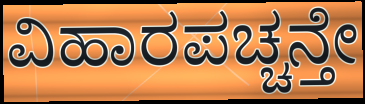
ವಿಹಾರಪಚ್ಚನ್ತೇ